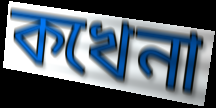
কখেনা